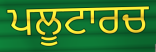
ਪਲੂਟਾਰਚ